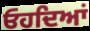
ਓਹਦਿਆਂ